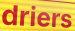
driers